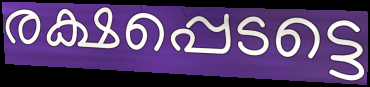
രക്ഷപ്പെടട്ടെ